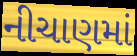
નીચાણમાં